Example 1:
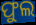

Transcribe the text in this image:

ଫୁଲ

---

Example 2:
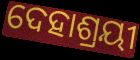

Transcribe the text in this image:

ଦେହାଶ୍ରୟୀ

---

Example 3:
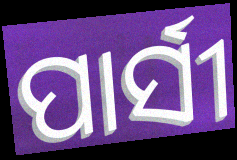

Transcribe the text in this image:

ପାର୍ସୀ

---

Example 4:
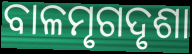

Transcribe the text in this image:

ବାଳମୃଗଦୃଶା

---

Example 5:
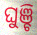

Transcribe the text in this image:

ଘୁଞ୍ଚି